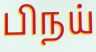
பிநய்